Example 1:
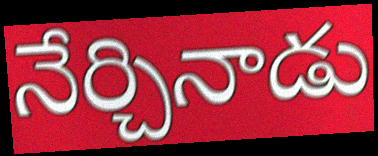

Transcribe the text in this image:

నేర్చినాడు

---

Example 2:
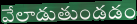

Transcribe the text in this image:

వేలాడుతుండడం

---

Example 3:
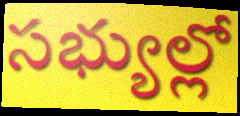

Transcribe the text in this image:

సభ్యుల్లో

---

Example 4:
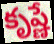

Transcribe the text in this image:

కృష్ణే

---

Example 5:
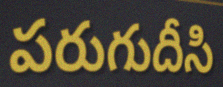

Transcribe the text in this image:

పరుగుదీసి